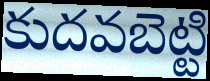
కుదవబెట్టి